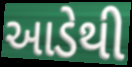
આડેથી